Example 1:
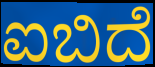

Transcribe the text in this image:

ಐಬಿದೆ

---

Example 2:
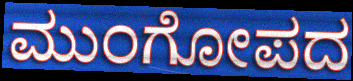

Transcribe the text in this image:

ಮುಂಗೋಪದ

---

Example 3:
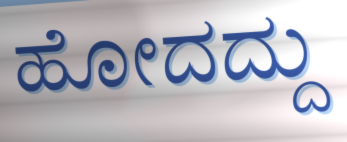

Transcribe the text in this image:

ಹೋದದ್ದು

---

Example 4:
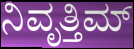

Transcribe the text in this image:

ನಿವೃತ್ತಿಮ್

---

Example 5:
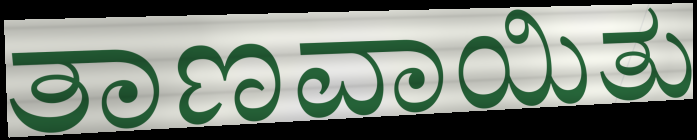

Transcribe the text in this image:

ತಾಣವಾಯಿತು